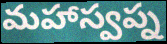
మహాస్వప్న